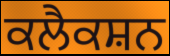
ਕਲੈਕਸ਼ਨ